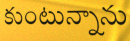
కుంటున్నాను